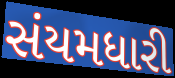
સંયમધારી